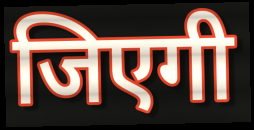
जिएगी